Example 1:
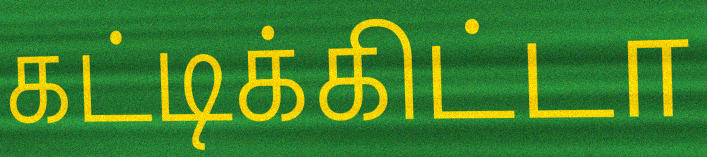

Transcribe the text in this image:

கட்டிக்கிட்டா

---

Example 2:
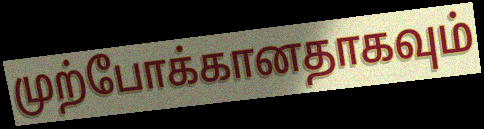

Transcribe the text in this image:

முற்போக்கானதாகவும்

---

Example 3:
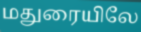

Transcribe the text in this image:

மதுரையிலே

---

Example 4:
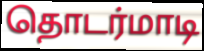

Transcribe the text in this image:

தொடர்மாடி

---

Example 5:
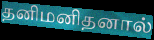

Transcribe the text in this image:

தனிமனிதனால்